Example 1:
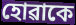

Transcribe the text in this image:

হোৱাকে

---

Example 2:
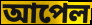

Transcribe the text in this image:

আপেল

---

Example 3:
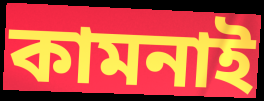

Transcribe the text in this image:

কামনাই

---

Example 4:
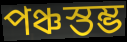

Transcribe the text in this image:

পঞ্চস্তম্ভ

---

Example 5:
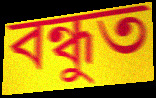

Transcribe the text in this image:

বন্ধুত